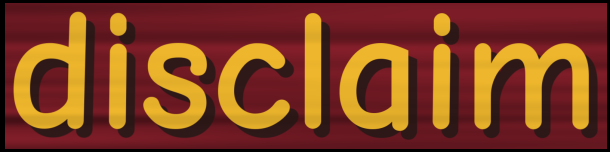
disclaim